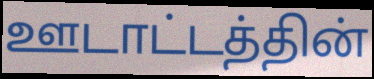
ஊடாட்டத்தின்